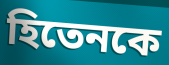
হিতেনকে